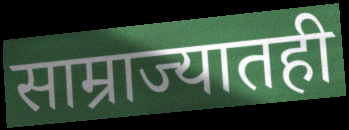
साम्राज्यातही